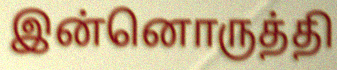
இன்னொருத்தி